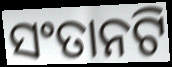
ସଂତାନଟି